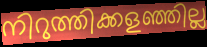
നിറുത്തിക്കളഞ്ഞില്ല